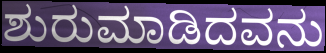
ಶುರುಮಾಡಿದವನು